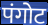
पंगोट